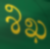
శిఖ